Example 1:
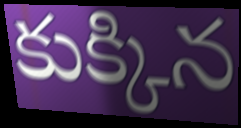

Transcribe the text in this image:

కుక్కిన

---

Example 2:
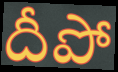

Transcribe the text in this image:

దీపో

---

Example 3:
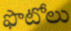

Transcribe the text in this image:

ఫొటోలు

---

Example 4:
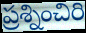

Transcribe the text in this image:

ప్రశ్నించిరి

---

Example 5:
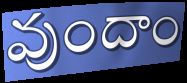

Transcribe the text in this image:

వుందాం